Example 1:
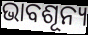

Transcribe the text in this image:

ଭାବଶୂନ୍ୟ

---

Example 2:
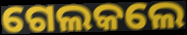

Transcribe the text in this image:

ଗେଲକଲେ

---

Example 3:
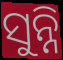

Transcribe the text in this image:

ସୁନ୍ନି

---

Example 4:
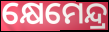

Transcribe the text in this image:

କ୍ଷେମେନ୍ଦ୍ର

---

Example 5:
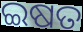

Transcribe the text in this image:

ଇଷତ